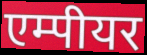
एम्पीयर